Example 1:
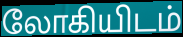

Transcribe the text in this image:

லோகியிடம்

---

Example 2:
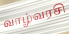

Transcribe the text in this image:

வாழ்வரசி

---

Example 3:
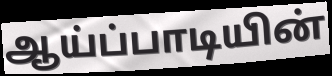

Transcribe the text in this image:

ஆய்ப்பாடியின்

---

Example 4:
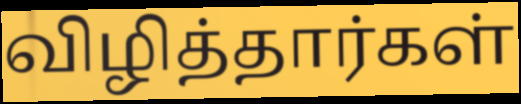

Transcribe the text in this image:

விழித்தார்கள்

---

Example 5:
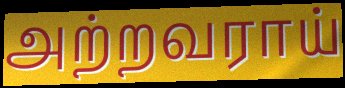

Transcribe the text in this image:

அற்றவராய்